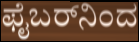
ಫೈಬರ್‌ನಿಂದ